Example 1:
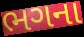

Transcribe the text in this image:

ભગના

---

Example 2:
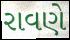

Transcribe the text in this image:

રાવણે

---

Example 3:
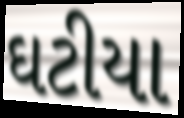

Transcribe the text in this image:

ઘટીયા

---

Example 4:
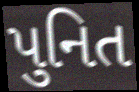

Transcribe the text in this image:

પુનિત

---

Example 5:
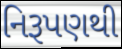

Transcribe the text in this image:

નિરૂપણથી